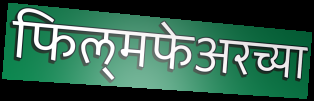
फिल्मफेअरच्या